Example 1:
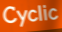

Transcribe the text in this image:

Cyclic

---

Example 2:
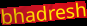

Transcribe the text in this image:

bhadresh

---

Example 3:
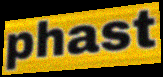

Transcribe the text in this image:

phast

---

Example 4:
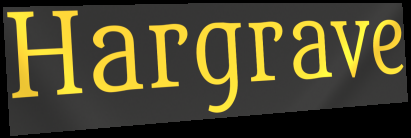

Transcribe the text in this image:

Hargrave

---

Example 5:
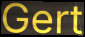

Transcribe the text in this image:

Gert